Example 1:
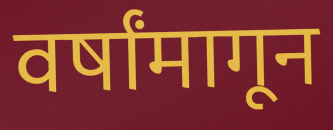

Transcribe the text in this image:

वर्षांमागून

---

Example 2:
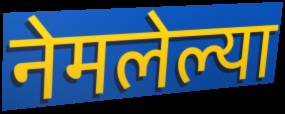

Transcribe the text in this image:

नेमलेल्या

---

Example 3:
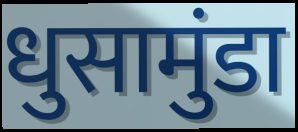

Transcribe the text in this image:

धुसामुंडा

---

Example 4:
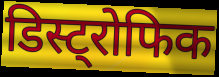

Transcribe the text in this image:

डिस्ट्रोफिक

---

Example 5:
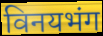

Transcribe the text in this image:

विनयभंग